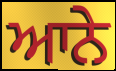
ਆਨੇ